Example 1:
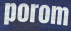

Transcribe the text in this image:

porom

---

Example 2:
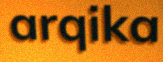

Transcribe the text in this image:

arqika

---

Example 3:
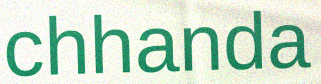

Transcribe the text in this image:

chhanda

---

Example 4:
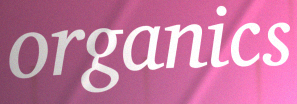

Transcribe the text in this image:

organics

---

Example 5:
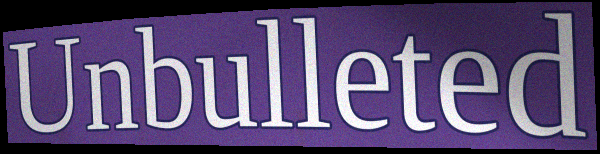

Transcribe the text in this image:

Unbulleted